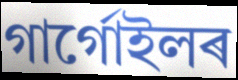
গাৰ্গোইলৰ